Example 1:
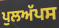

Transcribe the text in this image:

ਪੁਲਅੱਪਸ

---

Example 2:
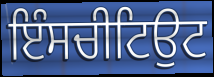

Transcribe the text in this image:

ਇੰਸਚੀਟਿਉਟ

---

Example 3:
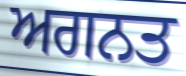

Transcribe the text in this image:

ਅਗਨਤ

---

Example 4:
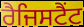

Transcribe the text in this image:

ਰੈਜਿਸਟੈਂਟ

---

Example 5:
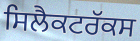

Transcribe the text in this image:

ਸਿਲੈਕਟਰੱਕਸ